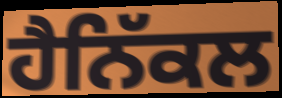
ਹੈਨਿੱਕਲ